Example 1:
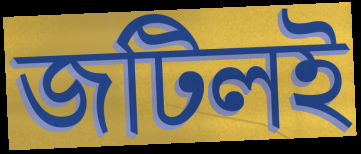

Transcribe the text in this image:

জটিলই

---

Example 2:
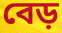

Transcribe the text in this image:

বেড়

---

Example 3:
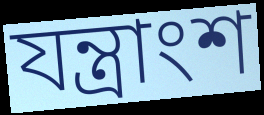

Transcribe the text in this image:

যন্ত্রাংশ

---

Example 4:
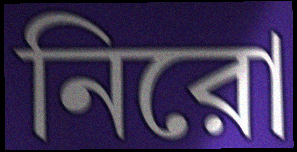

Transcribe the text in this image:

নিরো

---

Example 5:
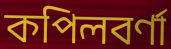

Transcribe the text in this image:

কপিলবর্ণা